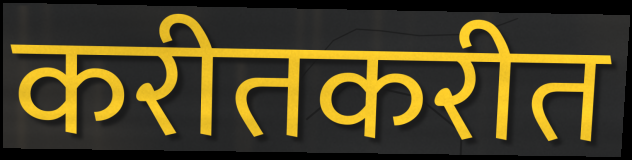
करीतकरीत